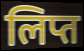
लिप्त